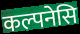
कल्पनेसि